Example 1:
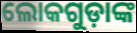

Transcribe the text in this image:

ଲୋକଗୁଡ଼ାଙ୍କ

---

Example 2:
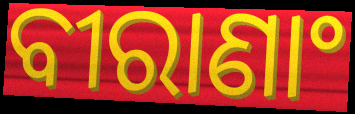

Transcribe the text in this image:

ବୀରାଣାଂ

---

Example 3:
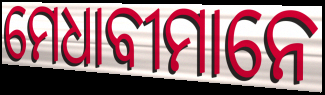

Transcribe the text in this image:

ମେଧାବୀମାନେ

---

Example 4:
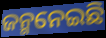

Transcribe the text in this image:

ଜନ୍ମନେଇଛି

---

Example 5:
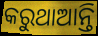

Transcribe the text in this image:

କରୁଥାଆନ୍ତି